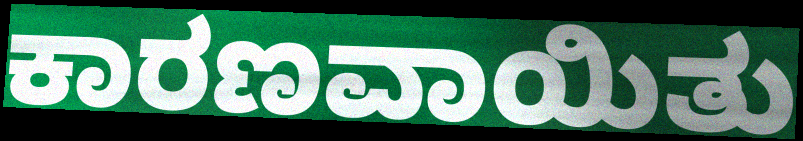
ಕಾರಣವಾಯಿತು